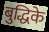
बुद्धिके